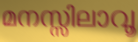
മനസ്സിലാവൂ